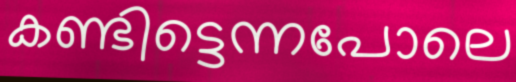
കണ്ടിട്ടെന്നപോലെ